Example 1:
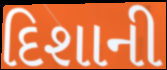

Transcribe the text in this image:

દિશાની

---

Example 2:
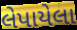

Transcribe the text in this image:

લેપાયેલા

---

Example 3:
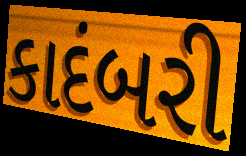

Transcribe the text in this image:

કાદંબરી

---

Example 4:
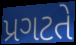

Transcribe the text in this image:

પ્રગટતે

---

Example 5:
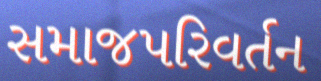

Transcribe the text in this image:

સમાજપરિવર્તન